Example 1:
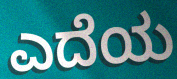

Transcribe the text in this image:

ಎದೆಯ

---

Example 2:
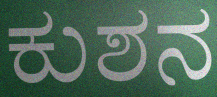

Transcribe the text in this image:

ಕುಶನ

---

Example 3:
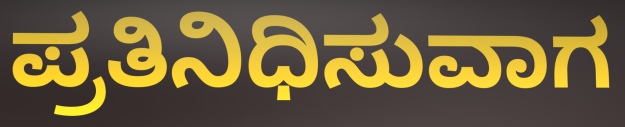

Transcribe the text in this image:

ಪ್ರತಿನಿಧಿಸುವಾಗ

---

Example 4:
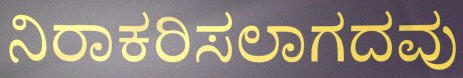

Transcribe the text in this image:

ನಿರಾಕರಿಸಲಾಗದವು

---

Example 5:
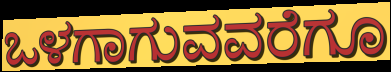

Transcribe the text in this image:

ಒಳಗಾಗುವವರೆಗೂ